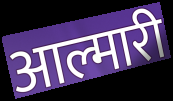
आल्मारी